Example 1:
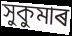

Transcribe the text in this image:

সুকুমাৰ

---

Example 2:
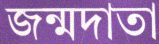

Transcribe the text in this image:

জন্মদাতা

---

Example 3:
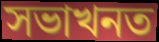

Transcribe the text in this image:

সভাখনত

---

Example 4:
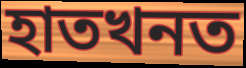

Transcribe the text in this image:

হাতখনত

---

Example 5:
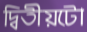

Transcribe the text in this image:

দ্বিতীয়টো